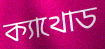
ক্যাথোড